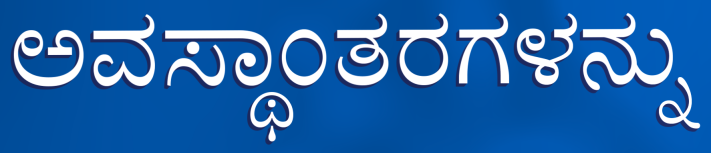
ಅವಸ್ಥಾಂತರಗಳನ್ನು